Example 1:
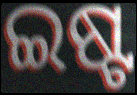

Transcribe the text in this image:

ଇଷ୍ଟ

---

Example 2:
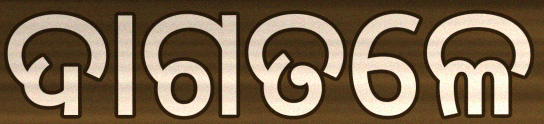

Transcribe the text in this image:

ଦାଗତଳେ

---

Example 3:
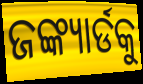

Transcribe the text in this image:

ଜଙ୍କ୍ୟାର୍ଡକୁ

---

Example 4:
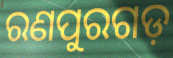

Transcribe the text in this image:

ରଣପୁରଗଡ଼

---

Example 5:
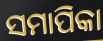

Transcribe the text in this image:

ସମାପିକା